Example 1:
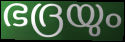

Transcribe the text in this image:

ഭദ്രയും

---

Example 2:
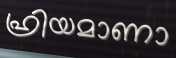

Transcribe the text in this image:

ഹ്രിയമാണാ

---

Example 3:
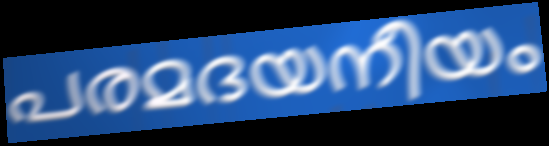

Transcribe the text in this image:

പരമദയനീയം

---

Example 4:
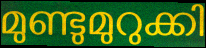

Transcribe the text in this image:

മുണ്ടുമുറുക്കി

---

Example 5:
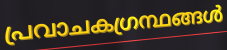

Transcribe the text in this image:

പ്രവാചകഗ്രന്ഥങ്ങൾ